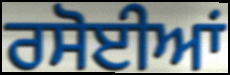
ਰਸੋਈਆਂ